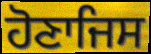
ਹੋਣਾਜਿਸ